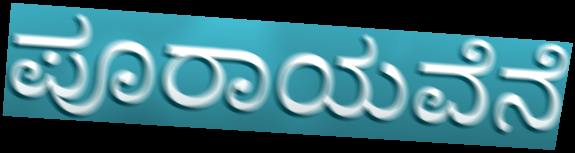
ಪೂರಾಯವೆನೆ